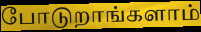
போடுறாங்களாம்